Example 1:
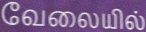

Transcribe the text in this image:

வேலையில்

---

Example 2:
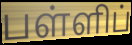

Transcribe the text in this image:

பள்ளிப்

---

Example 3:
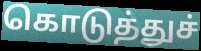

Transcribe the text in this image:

கொடுத்துச்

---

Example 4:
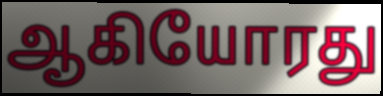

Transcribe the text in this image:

ஆகியோரது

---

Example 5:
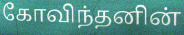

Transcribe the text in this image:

கோவிந்தனின்